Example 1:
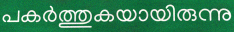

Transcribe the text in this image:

പകർത്തുകയായിരുന്നു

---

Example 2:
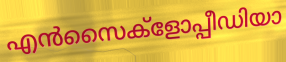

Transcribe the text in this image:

എൻസൈക്ളോപ്പീഡിയാ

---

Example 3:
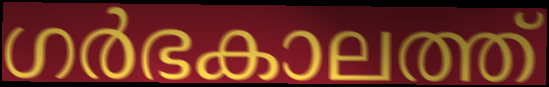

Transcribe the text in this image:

ഗർഭകാലത്ത്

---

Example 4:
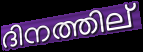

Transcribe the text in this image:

ദിനത്തില്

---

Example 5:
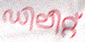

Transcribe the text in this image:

ഡിലീറ്റ്